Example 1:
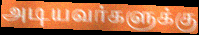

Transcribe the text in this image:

அடியவர்களுக்கு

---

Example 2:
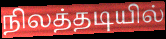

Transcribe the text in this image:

நிலத்தடியில்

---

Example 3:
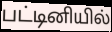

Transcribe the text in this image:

பட்டினியில்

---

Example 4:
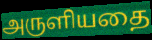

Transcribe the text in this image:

அருளியதை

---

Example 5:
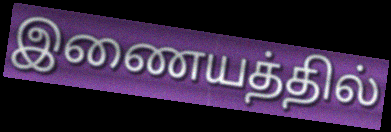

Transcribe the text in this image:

இணையத்தில்